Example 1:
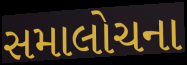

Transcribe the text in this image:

સમાલોચના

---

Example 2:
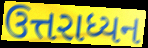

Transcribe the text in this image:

ઉત્તરાધ્યન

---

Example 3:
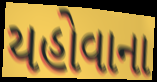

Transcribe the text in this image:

યહોવાના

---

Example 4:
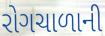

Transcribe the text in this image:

રોગચાળાની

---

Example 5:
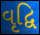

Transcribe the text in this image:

વૃદ્વિ